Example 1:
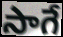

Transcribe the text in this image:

సాగే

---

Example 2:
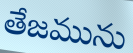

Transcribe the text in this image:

తేజమును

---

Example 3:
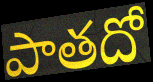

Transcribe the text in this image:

పాతదో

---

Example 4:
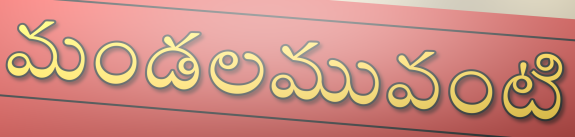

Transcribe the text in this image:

మండలమువంటి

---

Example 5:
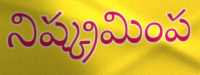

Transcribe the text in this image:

నిష్క్రమింప